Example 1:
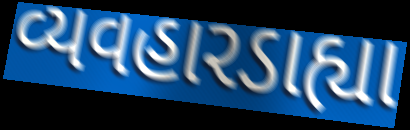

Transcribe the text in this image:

વ્યવહારડાહ્યા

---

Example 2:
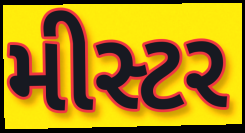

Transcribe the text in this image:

મીસ્ટર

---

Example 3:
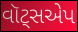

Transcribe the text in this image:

વૉટ્સએપ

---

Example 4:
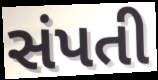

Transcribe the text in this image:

સંપતી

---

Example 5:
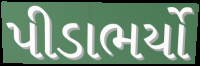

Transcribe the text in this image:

પીડાભર્યો